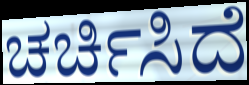
ಚರ್ಚಿಸಿದೆ